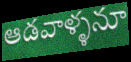
ఆడవాళ్ళనూ